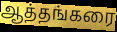
ஆத்தங்கரை